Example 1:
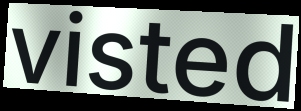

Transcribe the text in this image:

visted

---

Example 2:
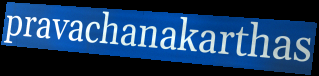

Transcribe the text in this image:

pravachanakarthas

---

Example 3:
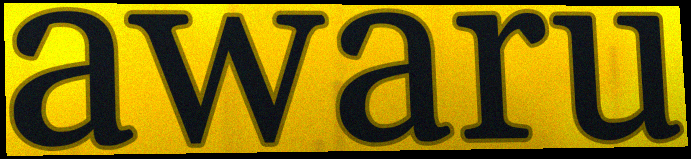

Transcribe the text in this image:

awaru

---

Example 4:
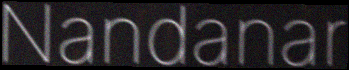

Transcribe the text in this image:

Nandanar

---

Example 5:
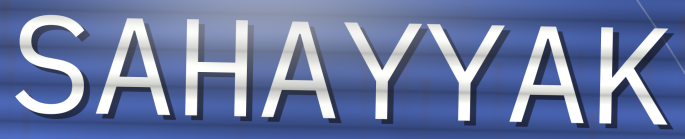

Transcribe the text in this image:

SAHAYYAK